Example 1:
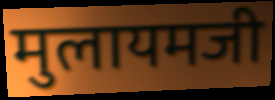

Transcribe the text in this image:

मुलायमजी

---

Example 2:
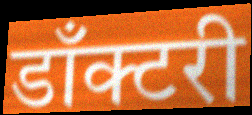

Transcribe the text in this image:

डाँक्टरी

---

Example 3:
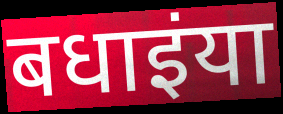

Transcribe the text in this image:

बधाइंया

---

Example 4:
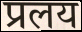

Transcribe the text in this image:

प्रलय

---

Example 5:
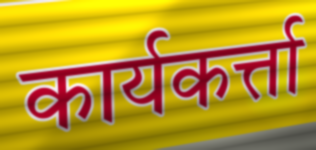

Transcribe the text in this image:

कार्यकर्त्ता